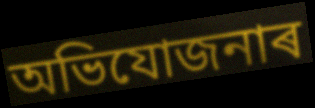
অভিযোজনাৰ